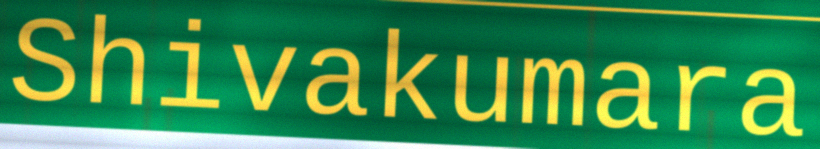
Shivakumara